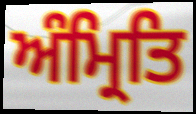
ਅੰਮ੍ਰਿਤਿ